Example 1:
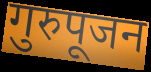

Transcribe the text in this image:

गुरुपूजन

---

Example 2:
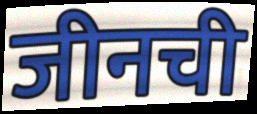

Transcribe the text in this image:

जीनची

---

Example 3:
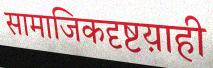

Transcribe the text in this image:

सामाजिकदृष्टय़ाही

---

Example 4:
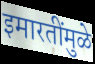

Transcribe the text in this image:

इमारतींमुळे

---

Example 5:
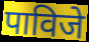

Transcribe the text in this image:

पाविजे